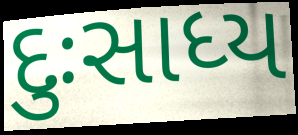
દુઃસાધ્ય